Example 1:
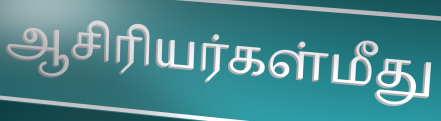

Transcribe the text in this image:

ஆசிரியர்கள்மீது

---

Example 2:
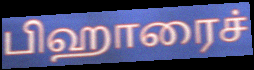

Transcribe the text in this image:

பிஹாரைச்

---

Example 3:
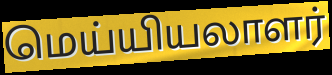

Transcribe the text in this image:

மெய்யியலாளர்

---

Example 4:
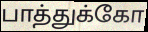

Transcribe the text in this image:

பாத்துக்கோ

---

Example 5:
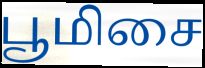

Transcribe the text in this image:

பூமிசை